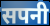
सपनी